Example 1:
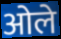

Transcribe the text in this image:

ओले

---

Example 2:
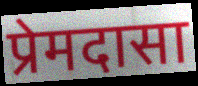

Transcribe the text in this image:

प्रेमदासा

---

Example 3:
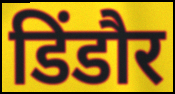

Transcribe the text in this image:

डिंडौर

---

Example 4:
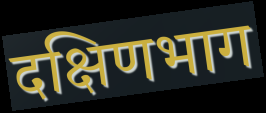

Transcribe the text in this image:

दक्षिणभाग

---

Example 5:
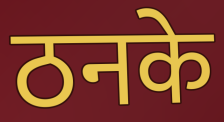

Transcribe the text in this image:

ठनके